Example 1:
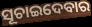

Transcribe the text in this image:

ସୂଚାଇଦେବାର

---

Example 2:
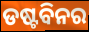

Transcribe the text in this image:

ଡଷ୍ଟବିନର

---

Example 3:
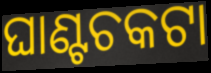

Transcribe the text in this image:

ଘାଣ୍ଟଚକଟା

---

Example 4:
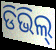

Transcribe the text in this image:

ଡିଭିଲ୍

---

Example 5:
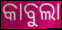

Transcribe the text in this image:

କାବୁଲା